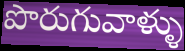
పొరుగువాళ్ళు